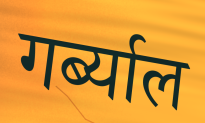
गर्ब्याल